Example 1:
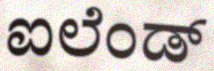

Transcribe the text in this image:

ಐಲೆಂಡ್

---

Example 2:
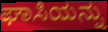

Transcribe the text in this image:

ಘಾಸಿಯನ್ನು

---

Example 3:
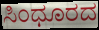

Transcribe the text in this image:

ಸಿಂಧೂರದ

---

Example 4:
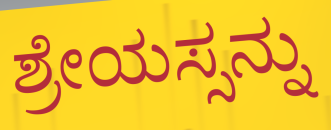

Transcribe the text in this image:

ಶ್ರೇಯಸ್ಸನ್ನು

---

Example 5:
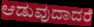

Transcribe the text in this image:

ಆಡುವುದಾದರೆ